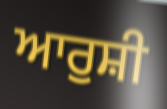
ਆਰੁਸ਼ੀ